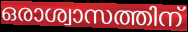
ഒരാശ്വാസത്തിന്